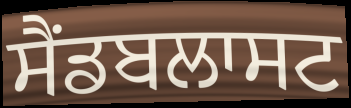
ਸੈਂਡਬਲਾਸਟ